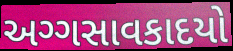
અગ્ગસાવકાદયો